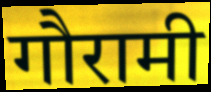
गौरामी